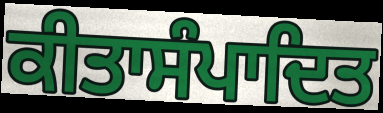
ਕੀਤਾਸੰਪਾਦਿਤ